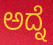
ಅದ್ನೆ